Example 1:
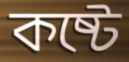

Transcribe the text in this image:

কষ্টে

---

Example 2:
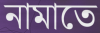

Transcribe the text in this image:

নামাতে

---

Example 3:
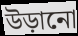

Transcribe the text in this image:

উড়ানো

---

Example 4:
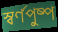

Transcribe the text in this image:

স্বর্ণপুষ্প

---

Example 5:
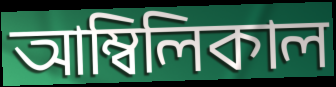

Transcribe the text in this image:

আম্বিলিকাল